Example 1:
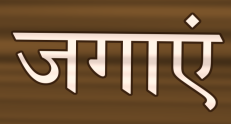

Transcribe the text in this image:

जगाएं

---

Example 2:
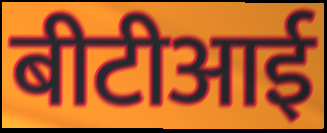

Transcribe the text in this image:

बीटीआई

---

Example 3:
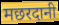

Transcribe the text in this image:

मछरदानी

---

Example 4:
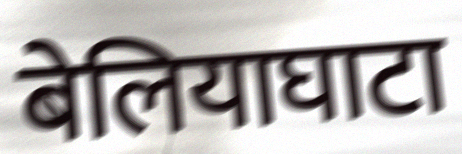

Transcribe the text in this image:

बेलियाघाटा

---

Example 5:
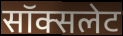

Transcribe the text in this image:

सॉक्सलेट